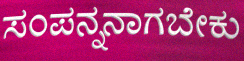
ಸಂಪನ್ನನಾಗಬೇಕು